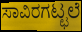
ಸಾವಿರಗಟ್ಟಲೆ